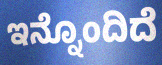
ಇನ್ನೊಂದಿದೆ